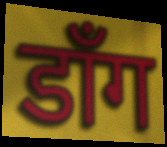
डाँग